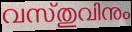
വസ്‌തുവിനും